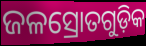
ଜଳସ୍ରୋତଗୁଡ଼ିକ